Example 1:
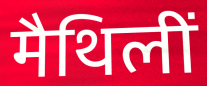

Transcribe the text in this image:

मैथिलीं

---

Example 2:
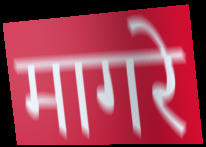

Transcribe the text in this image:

मागरे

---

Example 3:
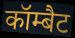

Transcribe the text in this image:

कॉम्बैट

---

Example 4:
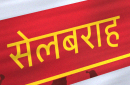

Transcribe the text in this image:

सेलबराह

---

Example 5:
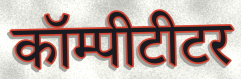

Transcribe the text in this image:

कॉम्पीटीटर